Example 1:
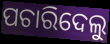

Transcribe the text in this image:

ପଚାରିଦେଲୁ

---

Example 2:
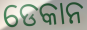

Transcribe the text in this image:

ଡେକାନ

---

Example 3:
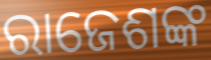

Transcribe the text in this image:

ରାଜେଶଙ୍କ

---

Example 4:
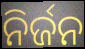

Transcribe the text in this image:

ନିର୍ଜନ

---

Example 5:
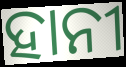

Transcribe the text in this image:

ହାନୀ